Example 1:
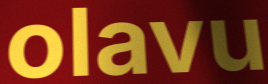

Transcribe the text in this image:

olavu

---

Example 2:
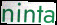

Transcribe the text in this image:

ninta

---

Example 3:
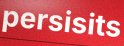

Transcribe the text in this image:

persisits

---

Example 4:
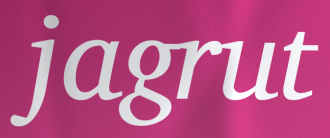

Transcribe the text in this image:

jagrut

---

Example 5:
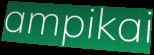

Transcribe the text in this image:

ampikai